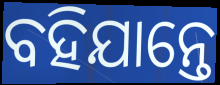
ବହିଯାନ୍ତେ